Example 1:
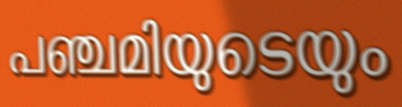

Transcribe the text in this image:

പഞ്ചമിയുടെയും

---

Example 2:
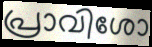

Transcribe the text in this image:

പ്രാവിശോ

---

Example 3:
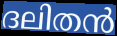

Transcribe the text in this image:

ദലിതൻ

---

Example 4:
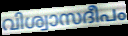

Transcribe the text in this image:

വിശ്വാസദീപം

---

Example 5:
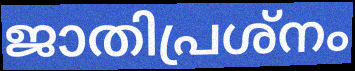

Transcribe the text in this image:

ജാതിപ്രശ്നം